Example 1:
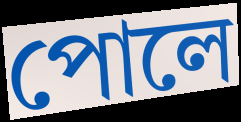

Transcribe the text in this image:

পোলে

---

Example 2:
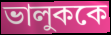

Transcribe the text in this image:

ভালুককে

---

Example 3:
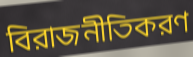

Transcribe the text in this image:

বিরাজনীতিকরণ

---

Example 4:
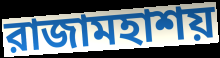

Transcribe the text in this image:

রাজামহাশয়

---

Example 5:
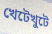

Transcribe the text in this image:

খেটেখুটে